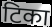
टिका